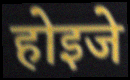
होइजे